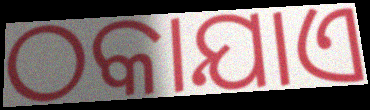
ଠକାଯାଏ